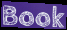
Book